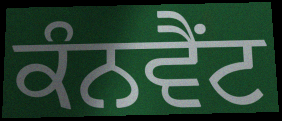
ਕੰਨਵੈਂਟ